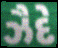
ઝૈદે